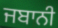
ਜਬਾਨੀ